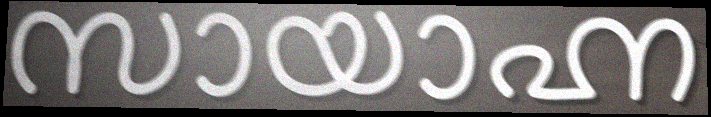
സായാഹ്ന